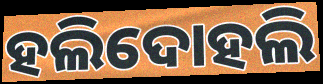
ହଲିଦୋହଲି